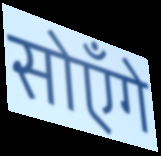
सोएँगे